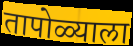
तापोळ्याला